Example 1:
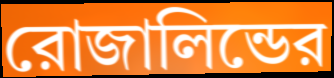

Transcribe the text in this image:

রোজালিন্ডের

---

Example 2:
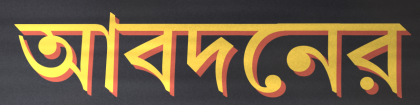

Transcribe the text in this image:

আবদনের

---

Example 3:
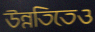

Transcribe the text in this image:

উন্নতিতেও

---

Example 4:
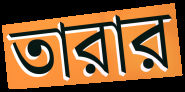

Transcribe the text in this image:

তারার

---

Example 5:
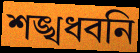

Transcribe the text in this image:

শঙ্খধবনি